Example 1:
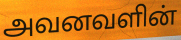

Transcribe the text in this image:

அவனவளின்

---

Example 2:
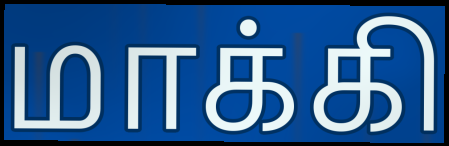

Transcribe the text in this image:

மாக்கி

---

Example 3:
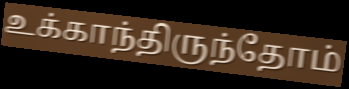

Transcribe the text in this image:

உக்காந்திருந்தோம்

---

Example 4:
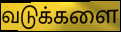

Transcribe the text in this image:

வடுக்களை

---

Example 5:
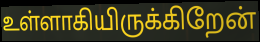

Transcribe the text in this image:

உள்ளாகியிருக்கிறேன்